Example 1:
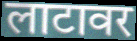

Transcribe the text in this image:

लाटावर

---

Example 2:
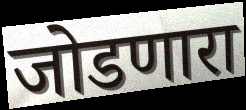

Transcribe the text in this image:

जोडणारा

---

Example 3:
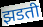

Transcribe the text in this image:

झडती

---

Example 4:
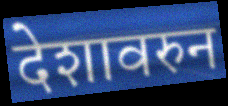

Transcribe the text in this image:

देशावरुन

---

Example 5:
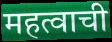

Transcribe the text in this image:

महत्वाची